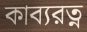
কাব্যরত্ন